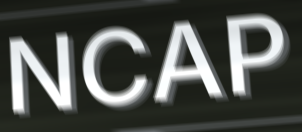
NCAP